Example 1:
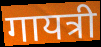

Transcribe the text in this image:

गायत्री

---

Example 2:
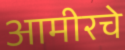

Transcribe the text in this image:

आमीरचे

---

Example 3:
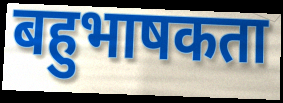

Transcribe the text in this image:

बहुभाषकता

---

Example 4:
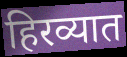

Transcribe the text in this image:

हिरव्यात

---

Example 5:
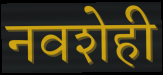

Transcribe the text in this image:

नवशेही